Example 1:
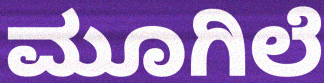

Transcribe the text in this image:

ಮೂಗಿಲೆ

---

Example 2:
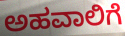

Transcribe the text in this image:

ಅಹವಾಲಿಗೆ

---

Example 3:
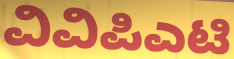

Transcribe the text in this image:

ವಿವಿಪಿಎಟಿ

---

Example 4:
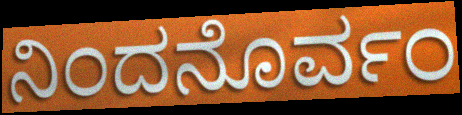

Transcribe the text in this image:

ನಿಂದನೊರ್ವಂ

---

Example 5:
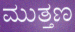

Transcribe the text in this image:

ಮುತ್ತಣ